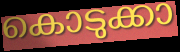
കൊടുക്കാ